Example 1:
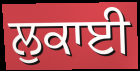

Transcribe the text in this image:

ਲੁਕਾਈ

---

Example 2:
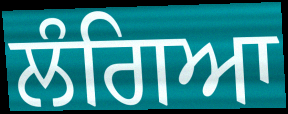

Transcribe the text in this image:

ਲੰਗਿਆ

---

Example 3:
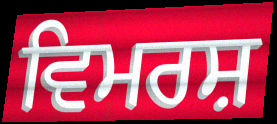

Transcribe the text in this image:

ਵਿਮਰਸ਼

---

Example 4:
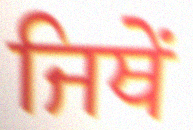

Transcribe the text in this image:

ਜਿਥੇਂ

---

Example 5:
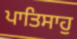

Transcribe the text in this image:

ਪਾਤਿਸਾਹੁ